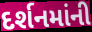
દર્શનમાંની